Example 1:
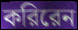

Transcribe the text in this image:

করিরেন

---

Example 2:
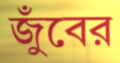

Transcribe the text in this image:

জুঁবের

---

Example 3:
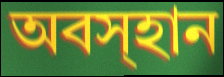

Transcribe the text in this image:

অবস্হান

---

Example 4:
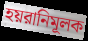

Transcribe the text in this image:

হয়রানিমূলক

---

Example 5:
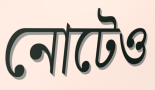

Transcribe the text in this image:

নোটেও